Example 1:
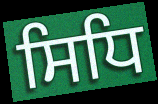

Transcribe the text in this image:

ਸਿਧਿ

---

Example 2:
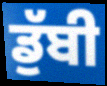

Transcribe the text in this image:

ਡੁੱਬੀ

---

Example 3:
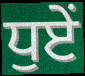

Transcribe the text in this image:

ਧੁਏਂ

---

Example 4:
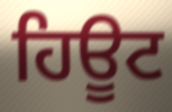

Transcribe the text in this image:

ਹਿਊਟ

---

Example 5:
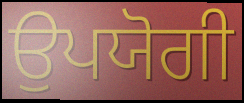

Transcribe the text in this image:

ਉਪਯੋਗੀ